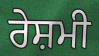
ਰੇਸ਼ਮੀ